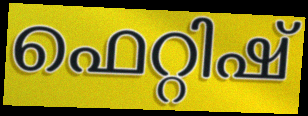
ഫെറ്റിഷ്